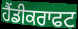
ਹੈਂਡੀਕਰਾਫਟ